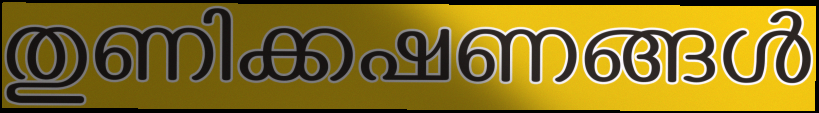
തുണിക്കഷണങ്ങൾ